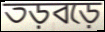
তড়বড়ে